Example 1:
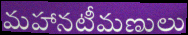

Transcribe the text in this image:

మహానటీమణులు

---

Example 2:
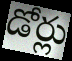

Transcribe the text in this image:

డోర్లు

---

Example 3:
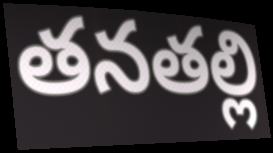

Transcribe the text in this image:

తనతల్లి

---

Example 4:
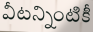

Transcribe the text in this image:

వీటన్నింటికీ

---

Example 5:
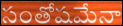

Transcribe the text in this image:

సంతోషమేనా